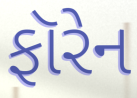
ફૉરેન